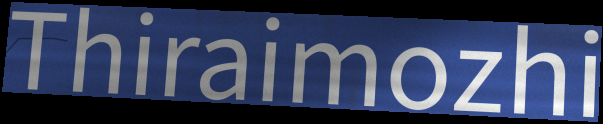
Thiraimozhi